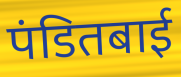
पंडितबाई